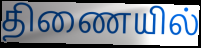
திணையில்